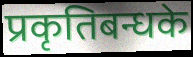
प्रकृतिबन्धके